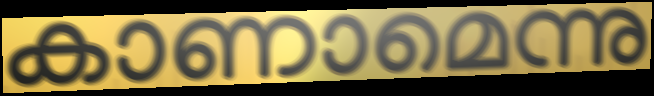
കാണാമെന്നു